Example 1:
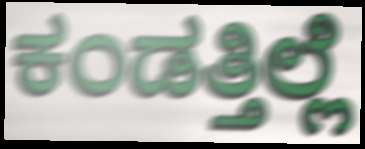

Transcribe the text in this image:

ಕಂಡತ್ತಿಲ್ಲೆ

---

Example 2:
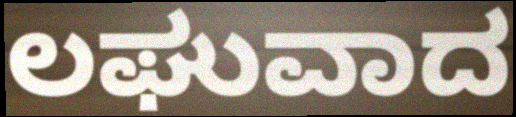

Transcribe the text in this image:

ಲಘುವಾದ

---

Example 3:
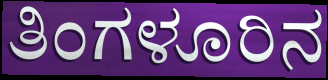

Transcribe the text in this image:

ತಿಂಗಳೂರಿನ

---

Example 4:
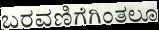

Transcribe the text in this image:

ಬರವಣಿಗೆಗಿಂತಲೂ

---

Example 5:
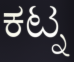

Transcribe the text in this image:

ಕಟ್ನ